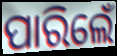
ପାରିଲେଁ